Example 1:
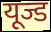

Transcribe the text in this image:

यूज्ड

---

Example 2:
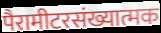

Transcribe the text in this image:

पैरामीटरसंख्यात्मक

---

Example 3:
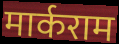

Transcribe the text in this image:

मार्कराम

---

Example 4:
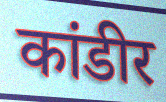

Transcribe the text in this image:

कांडीर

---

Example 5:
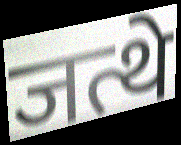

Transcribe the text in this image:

जत्थे